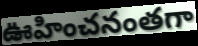
ఊహించనంతగా